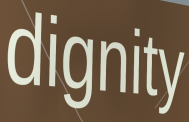
dignity